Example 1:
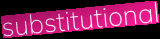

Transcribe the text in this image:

substitutional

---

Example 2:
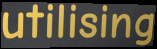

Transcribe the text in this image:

utilising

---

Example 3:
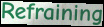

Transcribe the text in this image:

Refraining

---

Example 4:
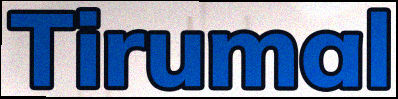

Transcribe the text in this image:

Tirumal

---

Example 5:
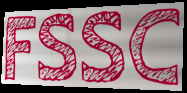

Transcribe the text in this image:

FSSC